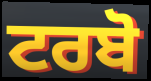
ਟਰਬੋ